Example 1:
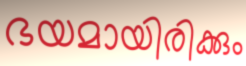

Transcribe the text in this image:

ഭയമായിരിക്കും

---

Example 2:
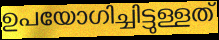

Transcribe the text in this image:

ഉപയോഗിച്ചിട്ടുള്ളത്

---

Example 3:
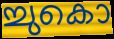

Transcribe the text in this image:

ച്ചുകൊ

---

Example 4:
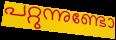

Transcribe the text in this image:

പറ്റുന്നുണ്ടോ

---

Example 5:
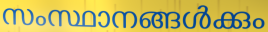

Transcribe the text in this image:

സംസ്ഥാനങ്ങൾക്കും